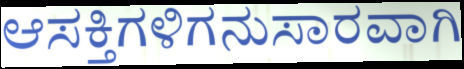
ಆಸಕ್ತಿಗಳಿಗನುಸಾರವಾಗಿ